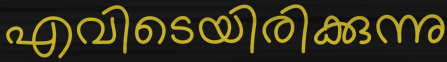
എവിടെയിരിക്കുന്നു